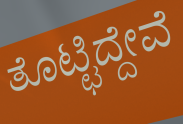
ತೊಟ್ಟಿದ್ದೇವೆ